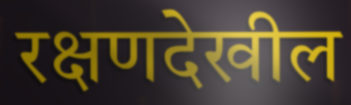
रक्षणदेखील